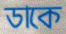
ডাকে